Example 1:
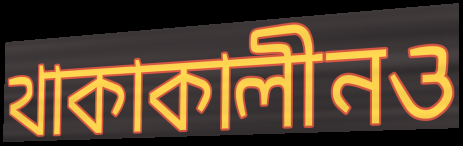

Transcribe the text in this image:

থাকাকালীনও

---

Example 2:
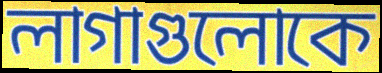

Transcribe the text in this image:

লাগাগুলোকে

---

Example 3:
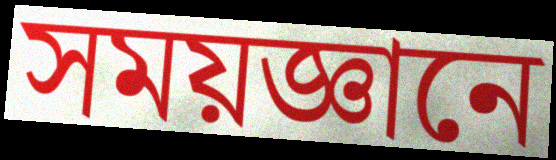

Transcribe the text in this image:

সময়জ্ঞানে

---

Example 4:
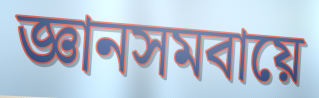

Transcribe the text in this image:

জ্ঞানসমবায়ে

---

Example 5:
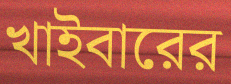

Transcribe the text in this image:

খাইবারের